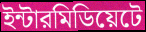
ইন্টারমিডিয়েটে